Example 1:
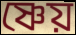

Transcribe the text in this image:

ষ্ণেয়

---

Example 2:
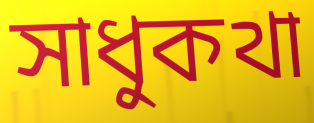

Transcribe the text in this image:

সাধুকথা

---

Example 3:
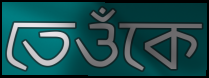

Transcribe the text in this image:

তেওঁকে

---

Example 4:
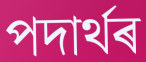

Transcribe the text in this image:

পদাৰ্থৰ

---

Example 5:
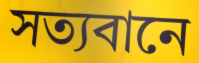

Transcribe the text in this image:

সত্যবানে